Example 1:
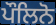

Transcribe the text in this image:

ਪੌਲਿਨੋ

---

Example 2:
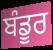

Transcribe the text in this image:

ਬੰਡੂਰ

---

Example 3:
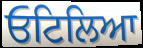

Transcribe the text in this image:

ਓਟਿਲਿਆ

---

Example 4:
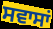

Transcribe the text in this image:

ਸਵਾਸਾਂ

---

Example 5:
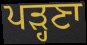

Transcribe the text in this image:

ਪੜ੍ਹਣਾ